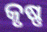
କୃଷ୍ଣ